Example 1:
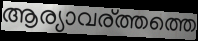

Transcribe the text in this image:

ആര്യാവര്ത്തത്തെ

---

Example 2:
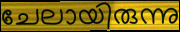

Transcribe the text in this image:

ചേലായിരുന്നു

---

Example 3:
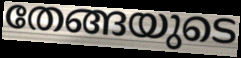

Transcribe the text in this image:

തേങ്ങയുടെ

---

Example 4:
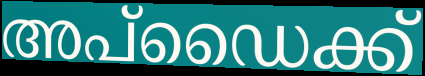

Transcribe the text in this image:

അപ്ഡൈക്ക്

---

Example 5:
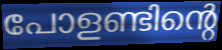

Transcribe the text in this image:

പോളണ്ടിന്റെ